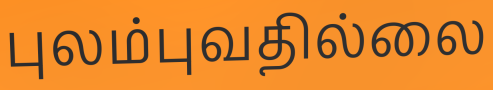
புலம்புவதில்லை